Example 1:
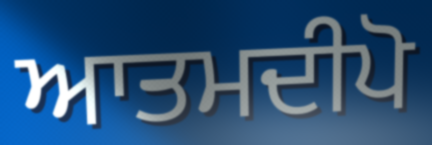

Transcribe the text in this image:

ਆਤਮਦੀਪੋ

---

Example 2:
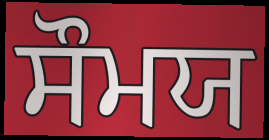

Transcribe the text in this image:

ਸੌਮਯ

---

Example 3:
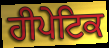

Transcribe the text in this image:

ਹੀਪੇਟਿਕ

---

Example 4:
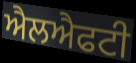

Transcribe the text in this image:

ਐਲਐਫਟੀ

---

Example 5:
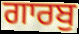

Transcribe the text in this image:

ਗਾਰਬੁ